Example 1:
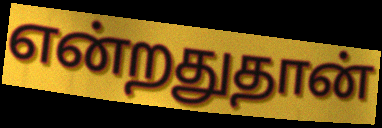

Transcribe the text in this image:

என்றதுதான்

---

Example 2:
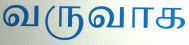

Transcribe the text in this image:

வருவாக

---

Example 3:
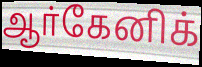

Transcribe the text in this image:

ஆர்கேனிக்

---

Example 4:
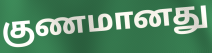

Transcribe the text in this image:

குணமானது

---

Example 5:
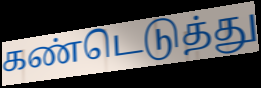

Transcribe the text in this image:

கண்டெடுத்து